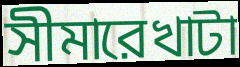
সীমারেখাটা